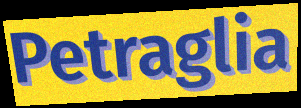
Petraglia